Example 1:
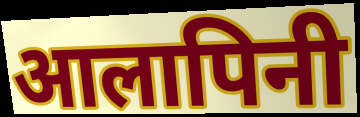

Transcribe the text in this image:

आलापिनी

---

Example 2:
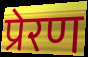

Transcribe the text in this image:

प्रेरण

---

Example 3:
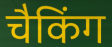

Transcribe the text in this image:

चैकिंग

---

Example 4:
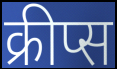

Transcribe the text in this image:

क्रीप्स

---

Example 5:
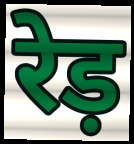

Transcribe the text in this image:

रेड़